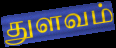
துளவம்